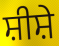
ਸ਼ੀਸ਼ੇ